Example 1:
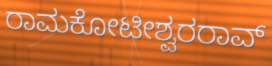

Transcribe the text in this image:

ರಾಮಕೋಟೀಶ್ವರರಾವ್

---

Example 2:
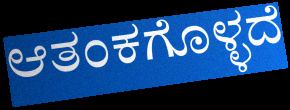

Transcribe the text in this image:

ಆತಂಕಗೊಳ್ಳದೆ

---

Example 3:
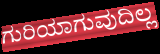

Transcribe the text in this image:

ಗುರಿಯಾಗುವುದಿಲ್ಲ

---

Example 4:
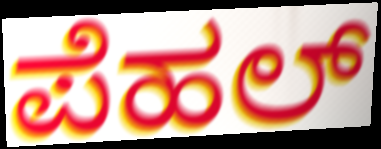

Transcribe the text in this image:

ಪೆಹಲ್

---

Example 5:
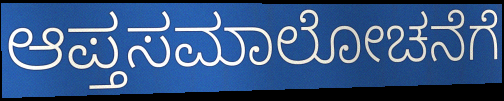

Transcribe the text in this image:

ಆಪ್ತಸಮಾಲೋಚನೆಗೆ